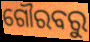
ଗୌରବରୁ